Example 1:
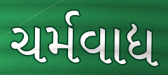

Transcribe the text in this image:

ચર્મવાદ્ય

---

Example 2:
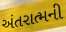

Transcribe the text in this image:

અંતરાત્મની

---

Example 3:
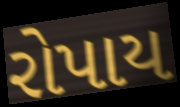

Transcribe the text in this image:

રોપાય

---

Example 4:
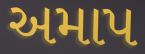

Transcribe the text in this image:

અમાપ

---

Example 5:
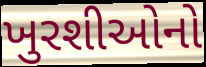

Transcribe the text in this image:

ખુરશીઓનો